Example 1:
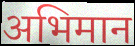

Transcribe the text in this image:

अभिमान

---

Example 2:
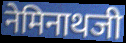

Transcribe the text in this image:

नेमिनाथजी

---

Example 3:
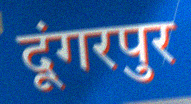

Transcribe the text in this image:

दूंगरपुर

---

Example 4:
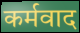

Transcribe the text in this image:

कर्मवाद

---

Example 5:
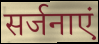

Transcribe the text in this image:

सर्जनाएं